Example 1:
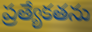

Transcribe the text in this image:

ప్రత్యేకతను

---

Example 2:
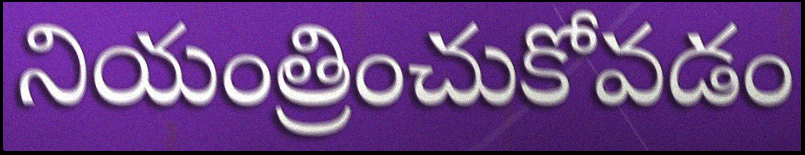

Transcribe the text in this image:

నియంత్రించుకోవడం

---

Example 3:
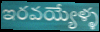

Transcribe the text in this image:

ఇరవయ్యేళ్ళ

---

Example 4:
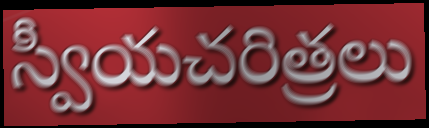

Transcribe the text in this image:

స్వీయచరిత్రలు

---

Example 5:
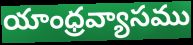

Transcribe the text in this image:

యాంధ్రవ్యాసము